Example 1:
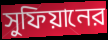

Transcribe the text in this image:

সুফিয়ানের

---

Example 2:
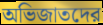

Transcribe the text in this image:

অভিজাতদের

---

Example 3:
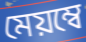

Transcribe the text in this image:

মেয়ম্বে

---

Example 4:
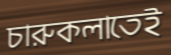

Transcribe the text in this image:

চারুকলাতেই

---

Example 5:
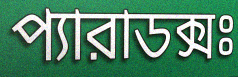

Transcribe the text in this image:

প্যারাডক্সঃ